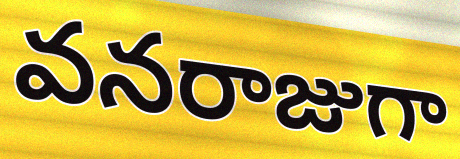
వనరాజుగా